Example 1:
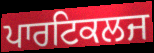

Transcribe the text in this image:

ਪਾਰਟਿਕਲਜ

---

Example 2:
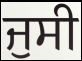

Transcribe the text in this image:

ਜੁਸੀ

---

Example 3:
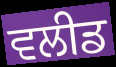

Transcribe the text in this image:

ਵਲੀਡ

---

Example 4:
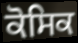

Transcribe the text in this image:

ਕੋਸਿਕ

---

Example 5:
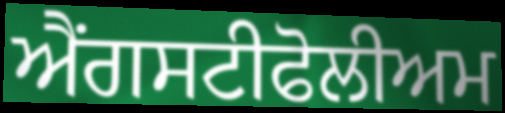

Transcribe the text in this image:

ਐਂਗਸਟੀਫੋਲੀਅਮ